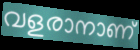
വളരാനാണ്